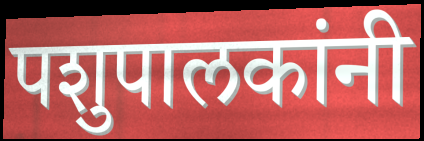
पशुपालकांनी